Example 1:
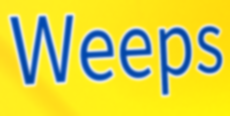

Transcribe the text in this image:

Weeps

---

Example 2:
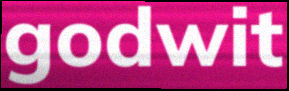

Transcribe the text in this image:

godwit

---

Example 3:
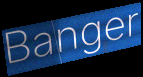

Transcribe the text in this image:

Banger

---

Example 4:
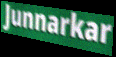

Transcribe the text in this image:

Junnarkar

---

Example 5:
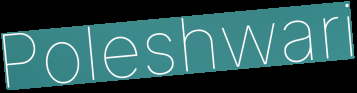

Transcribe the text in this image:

Poleshwari